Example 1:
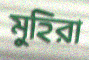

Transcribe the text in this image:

মুহিরা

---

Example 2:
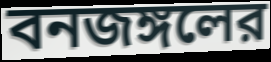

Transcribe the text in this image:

বনজঙ্গলের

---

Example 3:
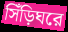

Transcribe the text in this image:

সিঁড়িঘরে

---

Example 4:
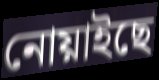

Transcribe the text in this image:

নোয়াইছে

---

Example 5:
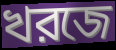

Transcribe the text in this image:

খরজে